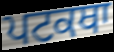
ਪਟਕਥਾ